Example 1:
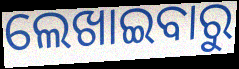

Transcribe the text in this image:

ଲେଖାଇବାରୁ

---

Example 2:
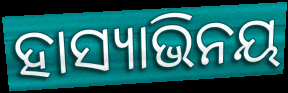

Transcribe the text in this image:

ହାସ୍ୟାଭିନୟ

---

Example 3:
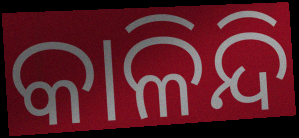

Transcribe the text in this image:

କାଳିନ୍ଦି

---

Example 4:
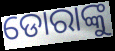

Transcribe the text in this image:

ଡୋରାଙ୍କୁ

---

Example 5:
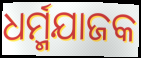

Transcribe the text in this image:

ଧର୍ମ୍ମଯାଜକ